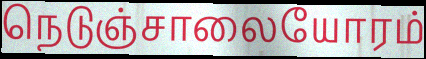
நெடுஞ்சாலையோரம்